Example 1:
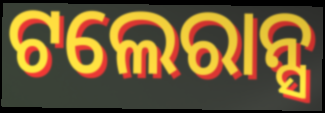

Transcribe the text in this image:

ଟଲେରାନ୍ସ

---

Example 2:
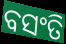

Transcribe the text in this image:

ବସଂତି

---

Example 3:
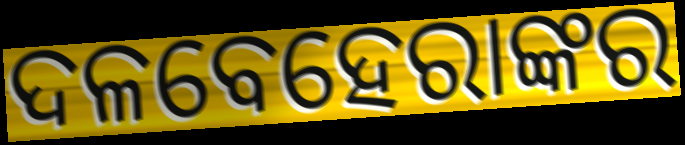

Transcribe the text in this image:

ଦଳବେହେରାଙ୍କର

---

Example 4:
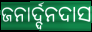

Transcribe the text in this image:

ଜନାର୍ଦ୍ଦନଦାସ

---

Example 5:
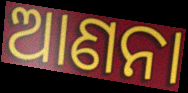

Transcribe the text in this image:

ଆଣନା